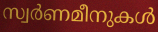
സ്വർണമീനുകൾ